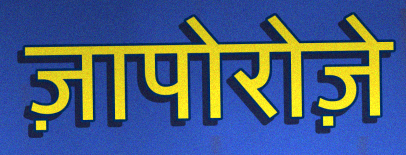
ज़ापोरोज़े